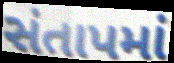
સંતાપમાં